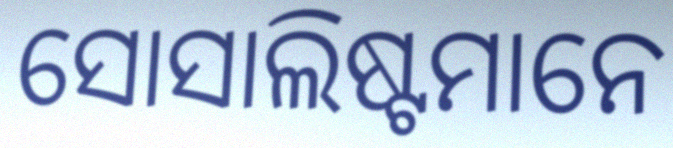
ସୋସାଲିଷ୍ଟମାନେ